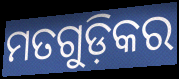
ମତଗୁଡ଼ିକର